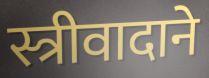
स्त्रीवादाने